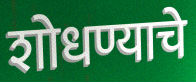
शोधण्याचे